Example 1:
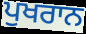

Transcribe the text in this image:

ਪੁਖਰਾਨ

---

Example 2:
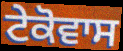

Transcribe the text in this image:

ਟੇਕੋਵਾਸ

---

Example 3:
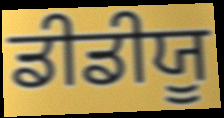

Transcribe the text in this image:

ਡੀਡੀਯੂ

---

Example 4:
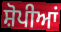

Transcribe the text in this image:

ਸ਼ੋਪੀਆਂ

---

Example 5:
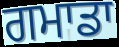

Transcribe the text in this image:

ਗਮਾਡਾ